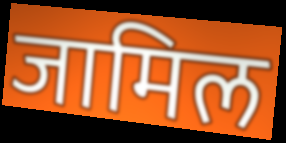
जामिल